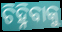
ଚିହ୍ନିବାକୁ